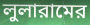
লুলারামের